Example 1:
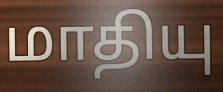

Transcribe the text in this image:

மாதியு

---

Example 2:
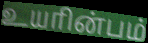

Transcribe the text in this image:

உயரின்பம்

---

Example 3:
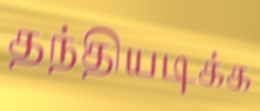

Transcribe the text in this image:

தந்தியடிக்க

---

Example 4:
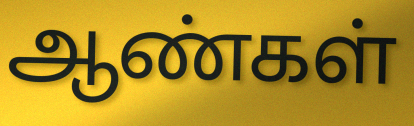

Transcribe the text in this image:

ஆண்கள்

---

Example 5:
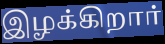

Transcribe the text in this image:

இழக்கிறார்